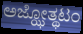
ಅಜ್ಝೋತ್ಥಟಂ